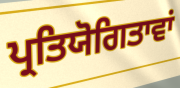
ਪ੍ਰਤਿਯੋਗਿਤਾਵਾਂ